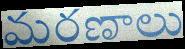
మరణాలు